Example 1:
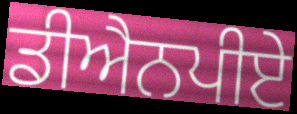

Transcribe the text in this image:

ਡੀਐਨਪੀਏ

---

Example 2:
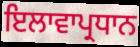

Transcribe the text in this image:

ਇਲਾਵਾਪ੍ਰਧਾਨ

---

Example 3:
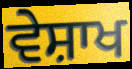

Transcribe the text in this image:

ਵੇਸ਼ਾਖ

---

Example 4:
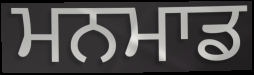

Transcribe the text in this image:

ਮਨਮਾਡ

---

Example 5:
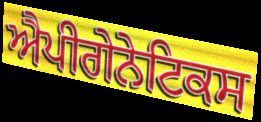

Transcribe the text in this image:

ਐਪੀਗੇਨੇਟਿਕਸ